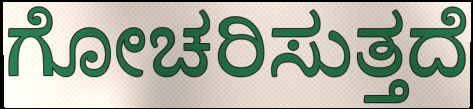
ಗೋಚರಿಸುತ್ತದೆ